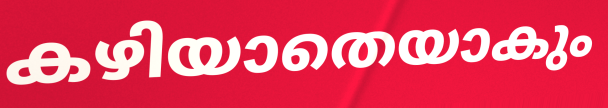
കഴിയാതെയാകും